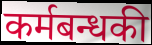
कर्मबन्धकी